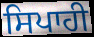
ਸਿਪਾਹੀ